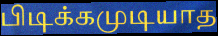
பிடிக்கமுடியாத